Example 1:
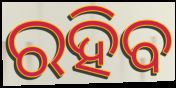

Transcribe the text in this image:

ରହିବ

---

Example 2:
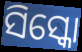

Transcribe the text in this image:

ସିସ୍କୋ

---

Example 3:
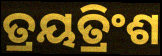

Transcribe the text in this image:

ତ୍ରୟତ୍ରିଂଶ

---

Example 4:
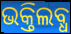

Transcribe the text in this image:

ଭକ୍ତିଲବ୍ଧ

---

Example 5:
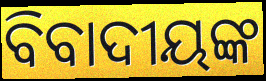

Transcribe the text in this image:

ବିବାଦୀୟଙ୍କ